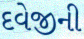
દવેજીની